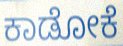
ಕಾಡೋಕೆ